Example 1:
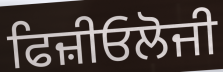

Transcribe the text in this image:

ਫਿਜ਼ੀਓਲੋਜੀ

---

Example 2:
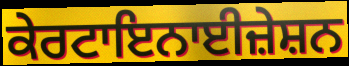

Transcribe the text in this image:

ਕੇਰਟਾਇਨਾਈਜ਼ੇਸ਼ਨ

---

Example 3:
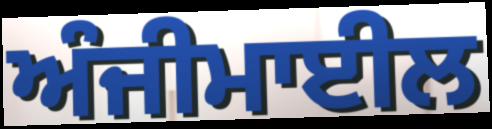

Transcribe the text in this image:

ਅੰਜੀਮਾਈਲ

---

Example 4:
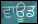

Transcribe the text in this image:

ਵਾਊਡ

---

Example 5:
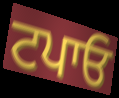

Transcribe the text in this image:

ਟਪਾਓ